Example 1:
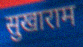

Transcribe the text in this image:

सुखाराम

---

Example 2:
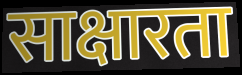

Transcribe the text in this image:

साक्षारता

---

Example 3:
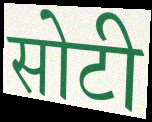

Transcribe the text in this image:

सोटी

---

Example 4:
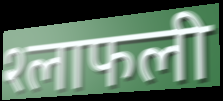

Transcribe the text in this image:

श्लाफली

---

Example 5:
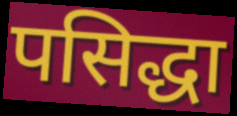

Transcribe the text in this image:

पसिद्धा